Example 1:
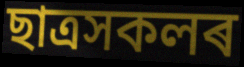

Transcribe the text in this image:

ছাত্ৰসকলৰ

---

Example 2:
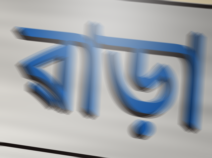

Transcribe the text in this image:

ৱাড়া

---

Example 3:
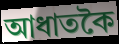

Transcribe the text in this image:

আধাতকৈ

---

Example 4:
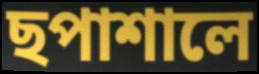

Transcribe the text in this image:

ছপাশালে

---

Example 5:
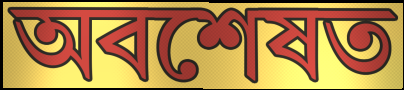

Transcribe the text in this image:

অবশেষত